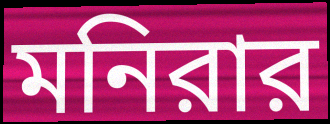
মনিরার